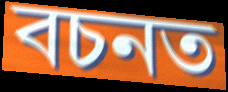
বচনত